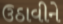
ઉઠાવીને